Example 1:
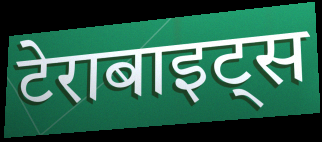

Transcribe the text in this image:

टेराबाइट्स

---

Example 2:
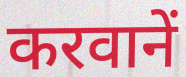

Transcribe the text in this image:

करवानें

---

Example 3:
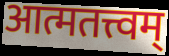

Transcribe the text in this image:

आत्मतत्त्वम्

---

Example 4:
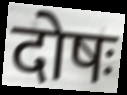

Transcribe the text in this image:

दोषः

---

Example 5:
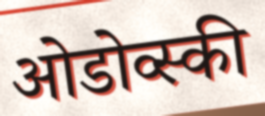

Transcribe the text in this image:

ओडोव्स्की